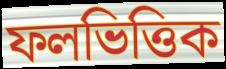
ফলভিত্তিক